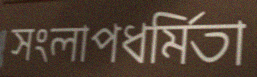
সংলাপধর্মিতা